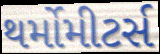
થર્મોમીટર્સ